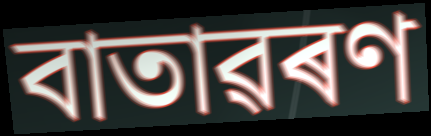
বাতাৱৰণ